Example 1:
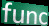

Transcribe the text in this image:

func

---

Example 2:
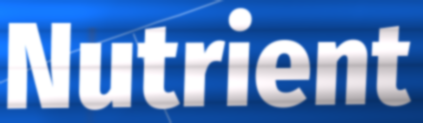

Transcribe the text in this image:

Nutrient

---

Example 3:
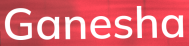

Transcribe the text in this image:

Ganesha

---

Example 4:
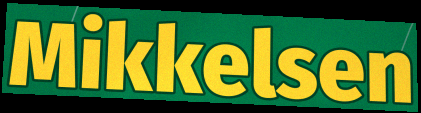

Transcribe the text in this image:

Mikkelsen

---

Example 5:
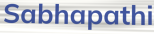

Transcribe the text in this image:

Sabhapathi